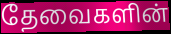
தேவைகளின்